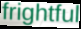
frightful